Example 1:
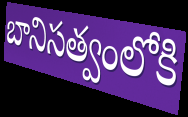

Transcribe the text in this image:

బానిసత్వంలోకి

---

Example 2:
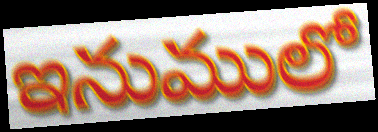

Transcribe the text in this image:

ఇనుములో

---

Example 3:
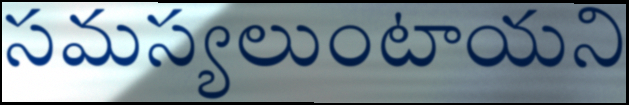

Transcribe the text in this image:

సమస్యలుంటాయని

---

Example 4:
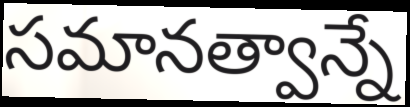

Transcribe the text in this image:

సమానత్వాన్నే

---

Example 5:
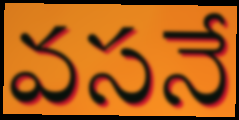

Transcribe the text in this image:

వసనే